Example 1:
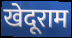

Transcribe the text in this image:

खेदूराम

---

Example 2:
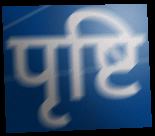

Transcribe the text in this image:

पृष्टि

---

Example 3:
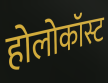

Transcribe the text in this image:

होलोकॉस्ट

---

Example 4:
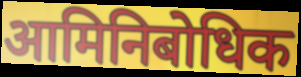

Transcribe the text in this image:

आमिनिबोधिक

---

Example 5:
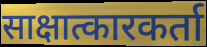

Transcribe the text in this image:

साक्षात्कारकर्ता